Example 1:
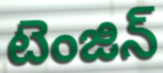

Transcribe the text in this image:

టెంజిన్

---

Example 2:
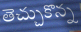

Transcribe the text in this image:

తెచ్చుకొన్న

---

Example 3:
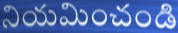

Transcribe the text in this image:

నియమించండి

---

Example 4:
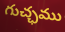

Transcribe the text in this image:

గుచ్ఛము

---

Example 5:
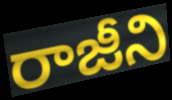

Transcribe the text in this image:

రాజీని